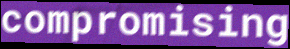
compromising